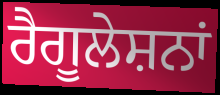
ਰੈਗੂਲੇਸ਼ਨਾਂ